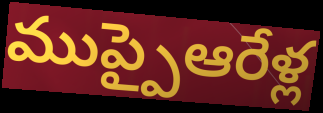
ముప్పైఆరేళ్ల